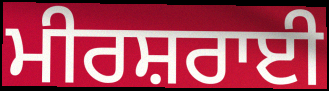
ਮੀਰਸ਼ਰਾਈ